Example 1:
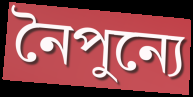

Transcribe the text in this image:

নৈপুন্যে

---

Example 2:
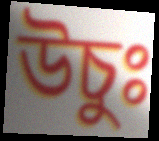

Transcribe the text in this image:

উচুঃ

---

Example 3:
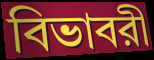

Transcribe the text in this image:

বিভাবরী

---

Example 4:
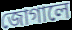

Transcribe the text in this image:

জোগালে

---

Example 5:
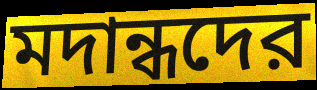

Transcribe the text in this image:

মদান্ধদের